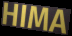
HIMA